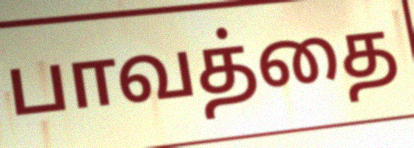
பாவத்தை